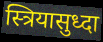
स्त्रियासुध्दा